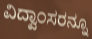
ವಿದ್ವಾಂಸರನ್ನೂ